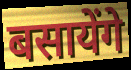
बसायेंगे